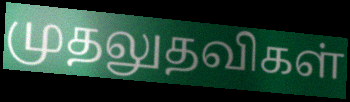
முதலுதவிகள்